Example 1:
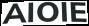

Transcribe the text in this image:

AIOIE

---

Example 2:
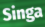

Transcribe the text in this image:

Singa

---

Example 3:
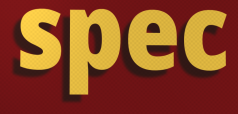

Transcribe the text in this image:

spec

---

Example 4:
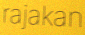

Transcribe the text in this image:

rajakan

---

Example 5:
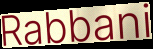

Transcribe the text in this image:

Rabbani